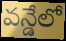
వన్డేలో